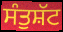
ਸੰਤੁਸ਼ੱਟ